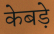
केबड़े